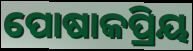
ପୋଷାକପ୍ରିୟ